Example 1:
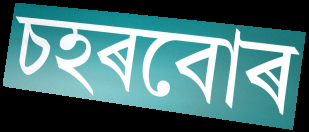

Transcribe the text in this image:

চহৰবোৰ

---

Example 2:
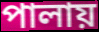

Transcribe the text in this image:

পালায়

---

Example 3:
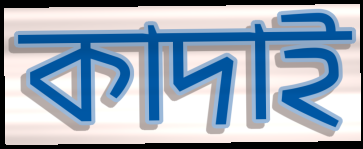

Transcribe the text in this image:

কাদাই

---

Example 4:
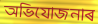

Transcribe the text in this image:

অভিযোজনাৰ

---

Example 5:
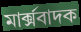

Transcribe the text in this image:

মাৰ্ক্সবাদক